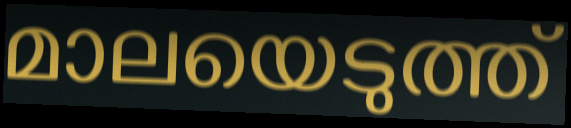
മാലയെടുത്ത്